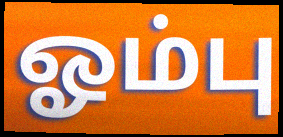
ஓம்பு